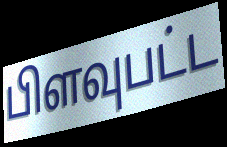
பிளவுபட்ட